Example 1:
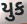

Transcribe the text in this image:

યુક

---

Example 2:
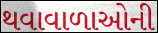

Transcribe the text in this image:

થવાવાળાઓની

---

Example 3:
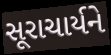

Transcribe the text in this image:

સૂરાચાર્યને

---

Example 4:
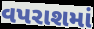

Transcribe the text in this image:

વપરાશમાં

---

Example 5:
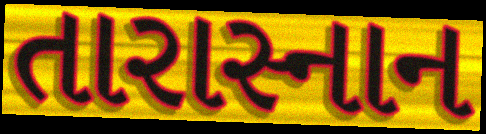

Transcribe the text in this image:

તારાસ્નાન